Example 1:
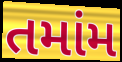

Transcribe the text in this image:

તમાંમ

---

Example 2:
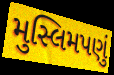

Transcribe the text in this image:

મુસ્લિમપણું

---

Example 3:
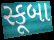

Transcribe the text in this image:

સ્કૂબા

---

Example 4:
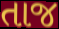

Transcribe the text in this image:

તાજ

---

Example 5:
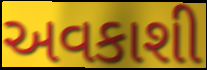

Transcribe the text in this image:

અવકાશી